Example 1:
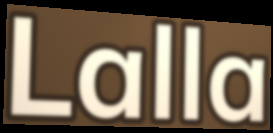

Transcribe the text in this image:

Lalla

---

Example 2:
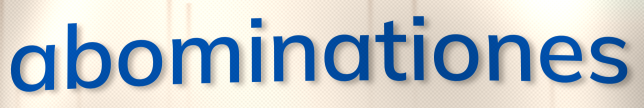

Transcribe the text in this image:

abominationes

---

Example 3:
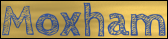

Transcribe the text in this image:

Moxham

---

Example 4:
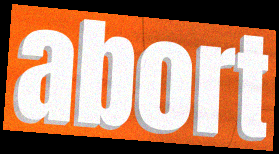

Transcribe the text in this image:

abort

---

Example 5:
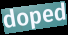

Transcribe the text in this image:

doped